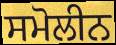
ਸਮੋਲੀਨ